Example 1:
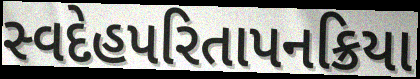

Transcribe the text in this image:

સ્વદેહપરિતાપનક્રિયા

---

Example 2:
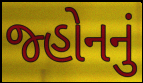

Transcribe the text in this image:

જ્હોનનું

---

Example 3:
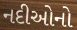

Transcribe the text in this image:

નદીઓનો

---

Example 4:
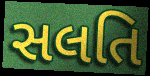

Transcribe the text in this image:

સલતિ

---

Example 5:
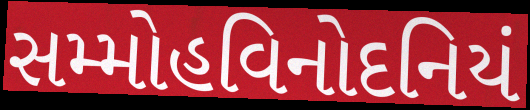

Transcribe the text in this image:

સમ્મોહવિનોદનિયં